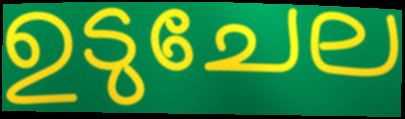
ഉടുചേല